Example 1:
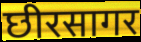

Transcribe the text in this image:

छीरसागर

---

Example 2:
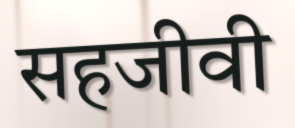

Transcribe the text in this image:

सहजीवी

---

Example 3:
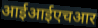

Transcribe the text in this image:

आईआईएचआर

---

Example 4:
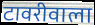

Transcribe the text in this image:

टावरीवाला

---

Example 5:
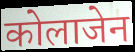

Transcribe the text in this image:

कोलाजेन